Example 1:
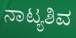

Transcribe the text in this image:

ನಾಟ್ಯಶಿವ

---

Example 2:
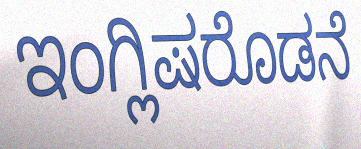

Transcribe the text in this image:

ಇಂಗ್ಲಿಷರೊಡನೆ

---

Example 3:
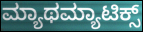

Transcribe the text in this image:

ಮ್ಯಾಥಮ್ಯಾಟಿಕ್ಸ್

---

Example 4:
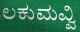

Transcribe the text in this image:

ಲಕುಮವ್ವಿ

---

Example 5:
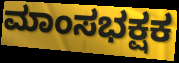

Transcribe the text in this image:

ಮಾಂಸಭಕ್ಷಕ